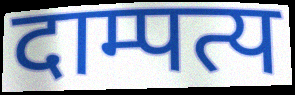
दाम्पत्य